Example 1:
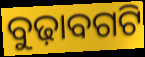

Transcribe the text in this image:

ବୁଢ଼ାବଗଟି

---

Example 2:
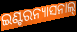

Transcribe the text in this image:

ଇଣ୍ଟରନ୍ୟାସନାଲ୍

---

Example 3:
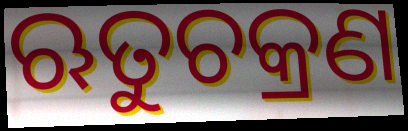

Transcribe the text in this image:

ଋତୁଚକ୍ରଣ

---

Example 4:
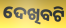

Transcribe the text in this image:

ଦେଖିବଟି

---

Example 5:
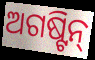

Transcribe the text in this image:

ଅଗଷ୍ଟିନ୍